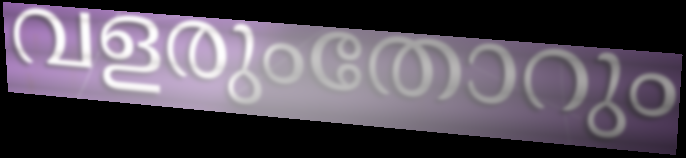
വളരുംതോറും